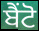
ਬੈਂਟੋ